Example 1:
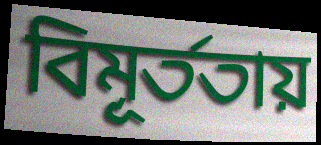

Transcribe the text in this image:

বিমূর্ততায়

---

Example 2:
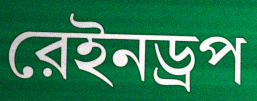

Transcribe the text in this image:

রেইনড্রপ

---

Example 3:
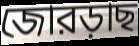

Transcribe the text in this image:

জোরড়াছ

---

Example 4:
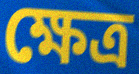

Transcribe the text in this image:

ক্ষেত্র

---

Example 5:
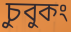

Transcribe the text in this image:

চুবুকং